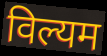
विल्यम